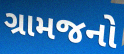
ગ્રામજનો